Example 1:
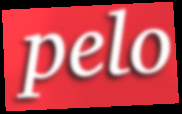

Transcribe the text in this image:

pelo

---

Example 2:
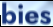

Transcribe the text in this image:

bies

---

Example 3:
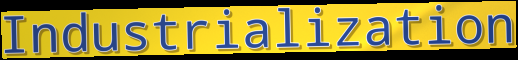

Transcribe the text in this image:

Industrialization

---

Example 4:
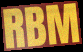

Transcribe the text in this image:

RBM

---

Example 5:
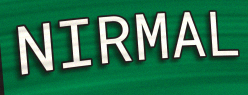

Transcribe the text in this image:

NIRMAL